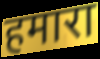
हमारा